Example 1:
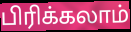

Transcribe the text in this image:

பிரிக்கலாம்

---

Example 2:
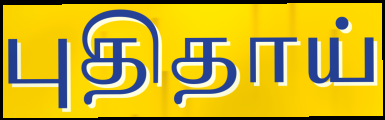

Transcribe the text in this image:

புதிதாய்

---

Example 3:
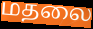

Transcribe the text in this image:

மதலை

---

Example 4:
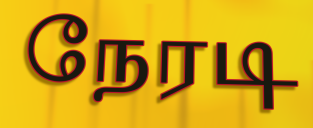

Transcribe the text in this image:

நேரடி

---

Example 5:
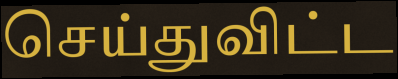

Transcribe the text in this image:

செய்துவிட்ட